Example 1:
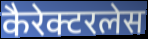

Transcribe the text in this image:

कैरेक्टरलेस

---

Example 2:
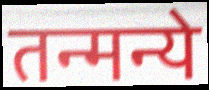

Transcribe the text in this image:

तन्मन्ये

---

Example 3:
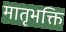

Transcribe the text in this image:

मातृभक्ति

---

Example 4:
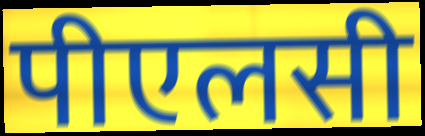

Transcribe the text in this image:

पीएलसी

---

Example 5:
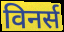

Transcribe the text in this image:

विनर्स